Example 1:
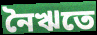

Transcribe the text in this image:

নৈঋতে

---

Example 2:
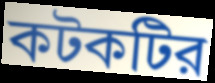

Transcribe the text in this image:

কটকটির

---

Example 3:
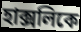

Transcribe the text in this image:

হাক্সলিকে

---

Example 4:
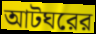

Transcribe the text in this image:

আটঘরের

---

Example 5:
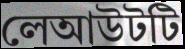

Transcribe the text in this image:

লেআউটটি